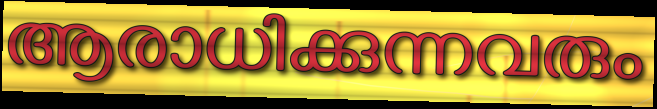
ആരാധിക്കുന്നവരും